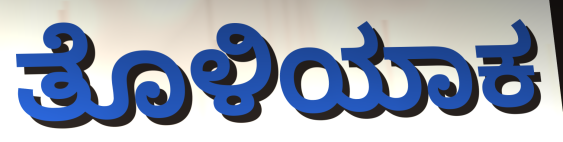
ತೊಳಿಯಾಕ